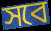
সবে